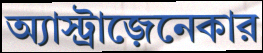
অ্যাস্ট্রাজ়েনেকার